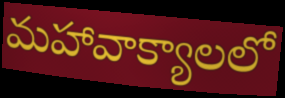
మహావాక్యాలలో